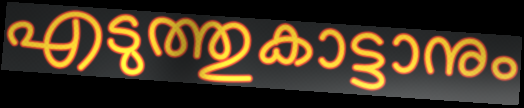
എടുത്തുകാട്ടാനും